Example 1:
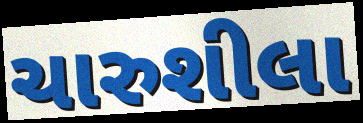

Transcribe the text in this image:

ચારુશીલા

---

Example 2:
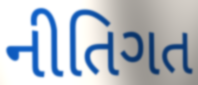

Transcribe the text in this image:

નીતિગત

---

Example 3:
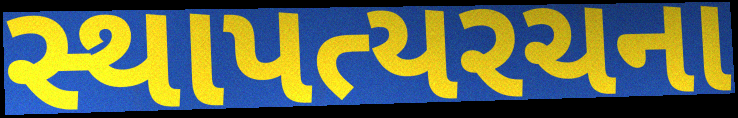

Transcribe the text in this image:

સ્થાપત્યરચના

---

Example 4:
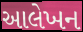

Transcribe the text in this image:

આલેખન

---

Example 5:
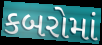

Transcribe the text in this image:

કબરોમાં